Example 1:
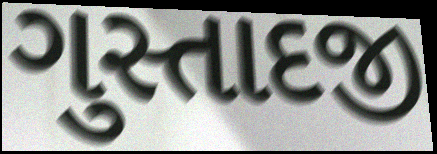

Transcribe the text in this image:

ગુસ્તાદજી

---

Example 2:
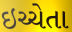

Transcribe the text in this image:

ઇચ્ચેતા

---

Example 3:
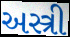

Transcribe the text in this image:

અસ્ત્રી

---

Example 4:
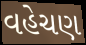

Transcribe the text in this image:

વહેચણ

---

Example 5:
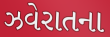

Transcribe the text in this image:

ઝવેરાતના